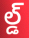
ల్డ్